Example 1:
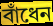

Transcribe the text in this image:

বাঁধেন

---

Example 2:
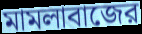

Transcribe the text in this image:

মামলাবাজের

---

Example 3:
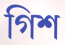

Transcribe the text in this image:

গিশ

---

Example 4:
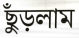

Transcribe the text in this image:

ছুঁড়লাম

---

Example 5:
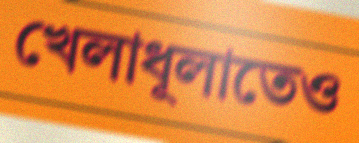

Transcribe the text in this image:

খেলাধূলাতেও